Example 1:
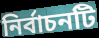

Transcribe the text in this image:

নির্বাচনটি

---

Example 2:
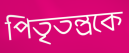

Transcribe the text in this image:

পিতৃতন্ত্রকে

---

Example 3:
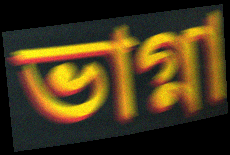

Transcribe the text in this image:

ভাগ্না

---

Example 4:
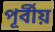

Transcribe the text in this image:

পূর্বীয়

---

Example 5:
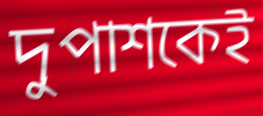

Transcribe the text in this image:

দুপাশকেই